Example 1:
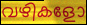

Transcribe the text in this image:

വഴികളോ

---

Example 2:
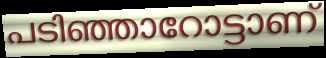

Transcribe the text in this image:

പടിഞ്ഞാറോട്ടാണ്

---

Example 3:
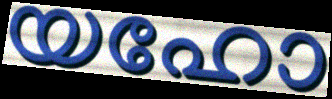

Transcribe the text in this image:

യഹോ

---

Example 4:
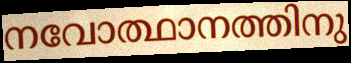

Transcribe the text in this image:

നവോത്ഥാനത്തിനു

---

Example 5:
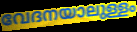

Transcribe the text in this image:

വേദനയാലുള്ളം